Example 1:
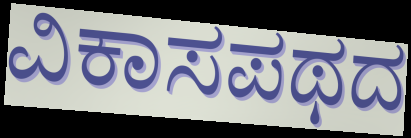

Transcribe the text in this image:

ವಿಕಾಸಪಥದ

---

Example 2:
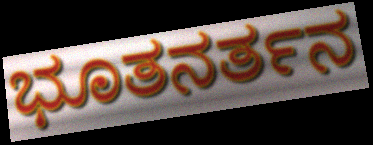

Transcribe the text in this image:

ಭೂತನರ್ತನ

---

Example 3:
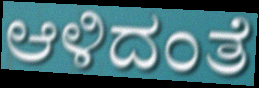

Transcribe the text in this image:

ಆಳಿದಂತೆ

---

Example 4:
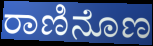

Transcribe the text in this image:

ರಾಣಿನೊಣ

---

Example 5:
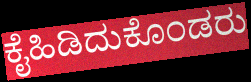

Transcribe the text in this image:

ಕೈಹಿಡಿದುಕೊಂಡರು